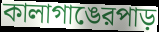
কালাগাঙেরপাড়